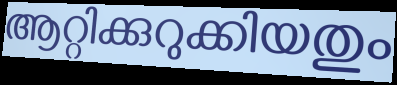
ആറ്റിക്കുറുക്കിയതും